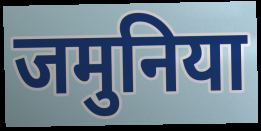
जमुनिया